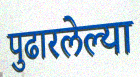
पुढारलेल्या